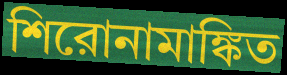
শিরোনামাঙ্কিত